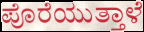
ಪೊರೆಯುತ್ತಾಳೆ